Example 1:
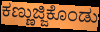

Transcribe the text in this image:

ಕಣ್ಣುಜ್ಜಿಕೊಂಡು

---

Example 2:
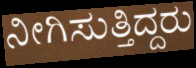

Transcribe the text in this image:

ನೀಗಿಸುತ್ತಿದ್ದರು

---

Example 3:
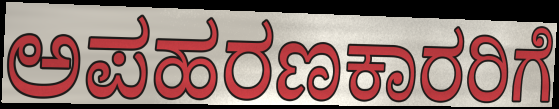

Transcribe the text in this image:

ಅಪಹರಣಕಾರರಿಗೆ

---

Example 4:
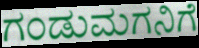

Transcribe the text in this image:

ಗಂಡುಮಗನಿಗೆ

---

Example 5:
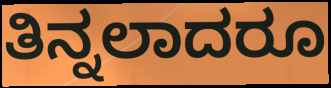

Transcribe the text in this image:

ತಿನ್ನಲಾದರೂ